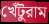
খেঁটুরাম